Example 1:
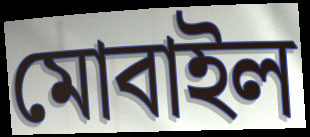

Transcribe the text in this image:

মোবাইল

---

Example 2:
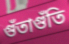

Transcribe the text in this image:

গুঁতাগুঁতি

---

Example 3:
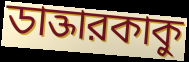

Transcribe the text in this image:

ডাক্তারকাকু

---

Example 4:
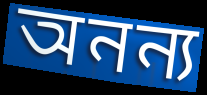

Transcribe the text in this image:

অনন্য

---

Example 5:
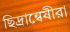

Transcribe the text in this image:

ছিদ্রান্বেষীরা